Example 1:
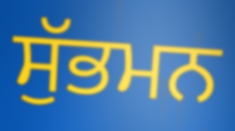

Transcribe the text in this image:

ਸੁੱਭਮਨ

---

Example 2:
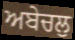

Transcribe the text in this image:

ਅਬੇਚਲੁ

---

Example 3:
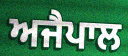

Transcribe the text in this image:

ਅਜੈਪਾਲ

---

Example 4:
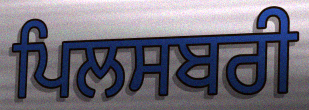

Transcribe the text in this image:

ਪਿਲਸਬਰੀ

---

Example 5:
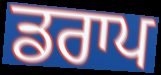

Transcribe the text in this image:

ਡਰਾਪ